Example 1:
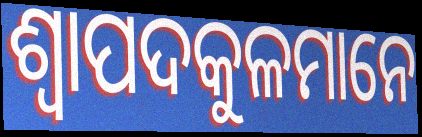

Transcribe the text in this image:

ଶ୍ୱାପଦକୁଳମାନେ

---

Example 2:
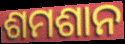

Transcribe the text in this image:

ଶମଶାନ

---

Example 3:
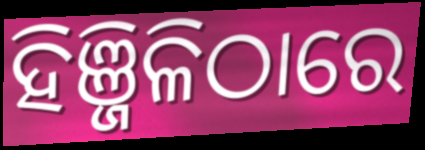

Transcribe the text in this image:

ହିଞ୍ଜିଳିଠାରେ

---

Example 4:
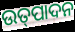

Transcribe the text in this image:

ଉତ୍‍ପାଦନ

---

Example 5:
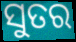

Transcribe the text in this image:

ସୁତର